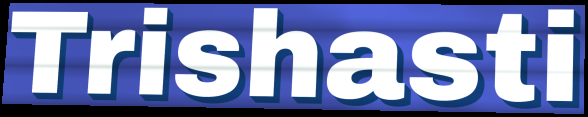
Trishasti